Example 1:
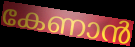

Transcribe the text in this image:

കേണാൻ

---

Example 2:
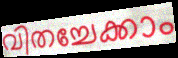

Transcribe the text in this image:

വിതച്ചേക്കാം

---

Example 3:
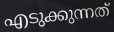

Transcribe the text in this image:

എടുക്കുന്നത്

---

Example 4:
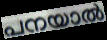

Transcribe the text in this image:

പനയാൽ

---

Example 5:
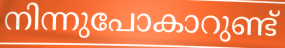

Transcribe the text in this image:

നിന്നുപോകാറുണ്ട്